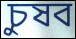
চুষব